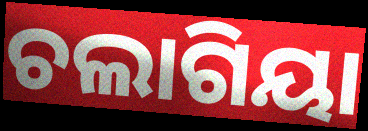
ଚଲାଗିୟା